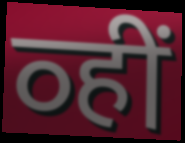
व्हीं